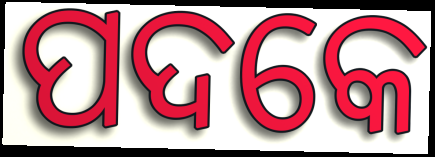
ପଦକେ